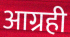
आग्रही